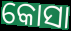
କୋସା